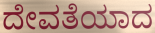
ದೇವತೆಯಾದ